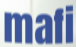
mafi